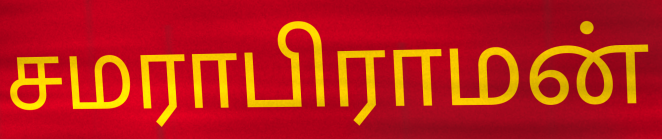
சமராபிராமன்